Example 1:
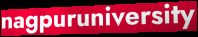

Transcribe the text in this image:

nagpuruniversity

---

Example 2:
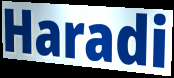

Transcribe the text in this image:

Haradi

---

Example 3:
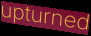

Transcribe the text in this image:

upturned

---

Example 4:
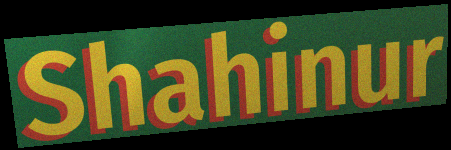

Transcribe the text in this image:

Shahinur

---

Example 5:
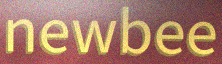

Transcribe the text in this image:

newbee